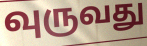
வுருவது